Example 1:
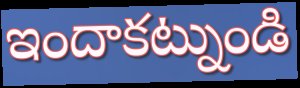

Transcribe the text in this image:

ఇందాకట్నుండి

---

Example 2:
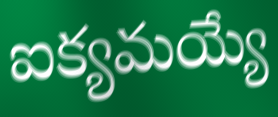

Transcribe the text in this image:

ఐక్యమయ్యే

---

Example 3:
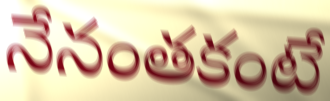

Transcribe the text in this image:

నేనంతకంటే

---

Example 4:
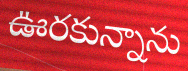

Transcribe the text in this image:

ఊరకున్నాను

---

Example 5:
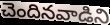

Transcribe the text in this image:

చెందినవాడిని